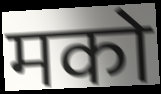
मको